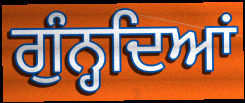
ਗੁੰਨ੍ਹਦਿਆਂ